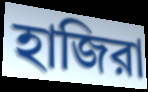
হাজিরা